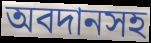
অবদানসহ